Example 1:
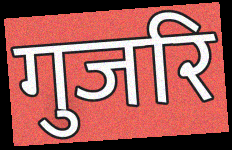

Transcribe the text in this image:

गुजरि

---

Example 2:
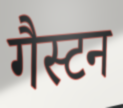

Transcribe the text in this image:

गैस्टन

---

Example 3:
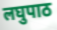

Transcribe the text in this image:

लघुपाठ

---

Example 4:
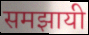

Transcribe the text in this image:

समझायी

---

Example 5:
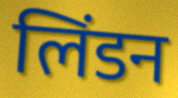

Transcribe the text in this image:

लिंडन